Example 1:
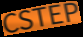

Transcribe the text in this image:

CSTEP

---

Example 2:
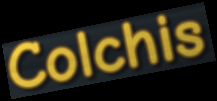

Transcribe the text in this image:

Colchis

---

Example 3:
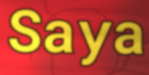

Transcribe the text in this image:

Saya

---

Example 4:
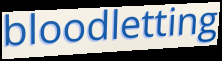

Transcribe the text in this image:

bloodletting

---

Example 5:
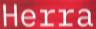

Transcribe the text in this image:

Herra